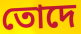
তোদে